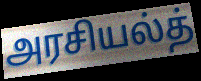
அரசியல்த்